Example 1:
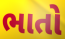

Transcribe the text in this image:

ભાતો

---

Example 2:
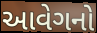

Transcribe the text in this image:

આવેગનો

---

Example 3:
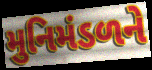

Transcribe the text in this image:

મુનિમંડળને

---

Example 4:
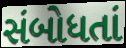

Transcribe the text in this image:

સંબોધતાં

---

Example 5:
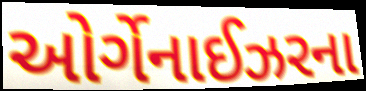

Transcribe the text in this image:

ઓર્ગેનાઈઝરના